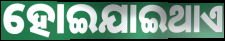
ହୋଇଯାଇଥାଏ